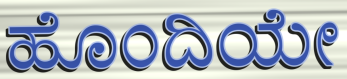
ಹೊಂದಿಯೇ